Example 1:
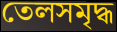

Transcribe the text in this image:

তেলসমৃদ্ধ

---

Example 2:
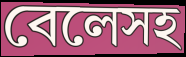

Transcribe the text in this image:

বেলেসহ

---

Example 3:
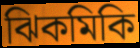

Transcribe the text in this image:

ঝিকমিকি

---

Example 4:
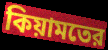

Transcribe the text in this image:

কিয়ামতের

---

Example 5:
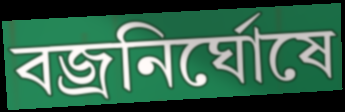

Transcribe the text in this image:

বজ্রনির্ঘোষে